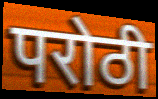
परोठी